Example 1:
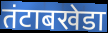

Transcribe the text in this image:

तंटाबखेडा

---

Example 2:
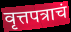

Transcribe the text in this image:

वृत्तपत्राचं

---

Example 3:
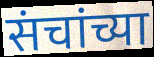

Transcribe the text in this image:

संचांच्या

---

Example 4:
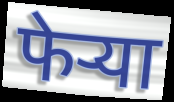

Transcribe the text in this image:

फेऱ्या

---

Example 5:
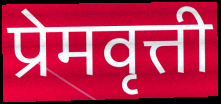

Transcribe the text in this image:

प्रेमवृत्ती